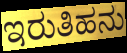
ಇರುತಿಹನು